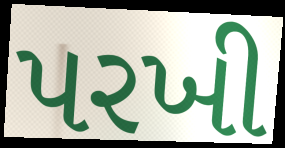
પરખી